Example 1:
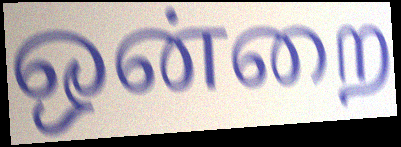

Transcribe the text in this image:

ஒன்றை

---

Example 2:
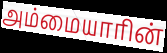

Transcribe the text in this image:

அம்மையாரின்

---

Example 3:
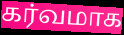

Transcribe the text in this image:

கர்வமாக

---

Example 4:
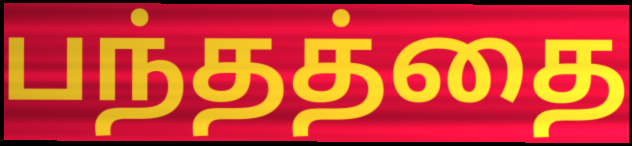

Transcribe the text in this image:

பந்தத்தை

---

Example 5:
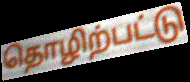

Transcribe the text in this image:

தொழிற்பட்டு